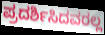
ಪ್ರದರ್ಶಿಸಿದವರಲ್ಲ